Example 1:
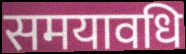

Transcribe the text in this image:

समयावधि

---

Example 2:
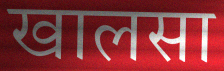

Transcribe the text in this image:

खालसा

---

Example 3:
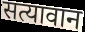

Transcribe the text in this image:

सत्यावान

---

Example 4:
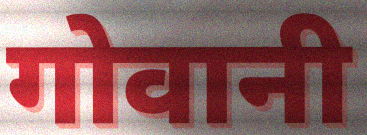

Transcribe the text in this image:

गोवानी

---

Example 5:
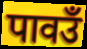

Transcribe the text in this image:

पावउँ